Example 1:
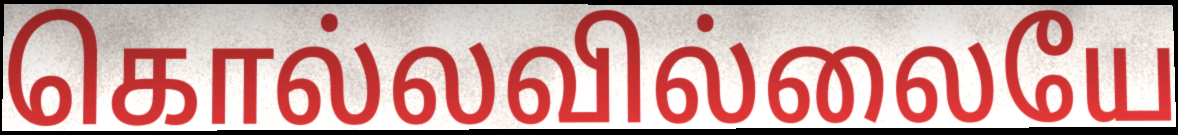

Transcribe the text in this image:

கொல்லவில்லையே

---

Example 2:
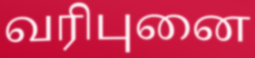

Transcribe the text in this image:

வரிபுனை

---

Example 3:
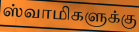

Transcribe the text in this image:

ஸ்வாமிகளுக்கு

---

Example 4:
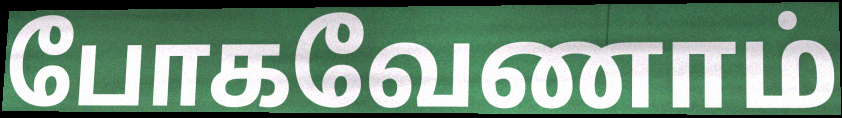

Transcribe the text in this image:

போகவேணாம்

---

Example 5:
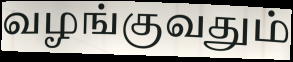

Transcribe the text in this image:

வழங்குவதும்